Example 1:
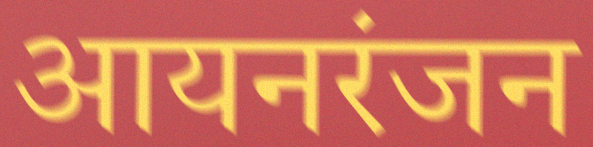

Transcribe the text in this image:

आयनरंजन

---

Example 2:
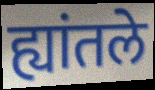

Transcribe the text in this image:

ह्यांतले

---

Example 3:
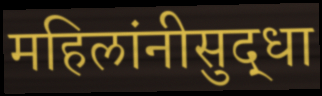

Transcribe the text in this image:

महिलांनीसुद्धा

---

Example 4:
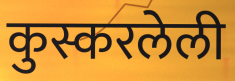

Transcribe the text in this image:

कुस्करलेली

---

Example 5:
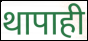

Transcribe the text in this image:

थापाही